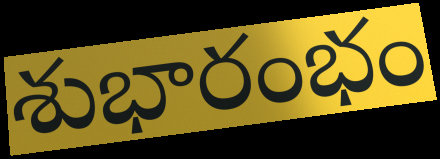
శుభారంభం